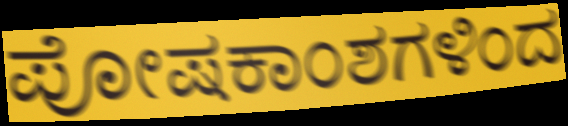
ಪೋಷಕಾಂಶಗಳಿಂದ